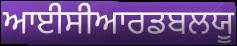
ਆਈਸੀਆਰਡਬਲਯੂ